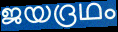
ജയദ്രഥം